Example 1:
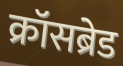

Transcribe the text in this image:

क्रॉसब्रेड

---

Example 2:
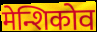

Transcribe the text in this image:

मेन्शिकोव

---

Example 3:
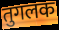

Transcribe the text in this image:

तुगलक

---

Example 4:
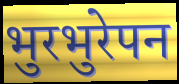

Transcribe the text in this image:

भुरभुरेपन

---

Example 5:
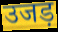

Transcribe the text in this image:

उजड़